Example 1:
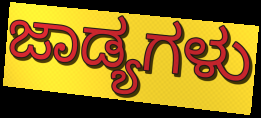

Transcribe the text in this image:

ಜಾಡ್ಯಗಳು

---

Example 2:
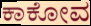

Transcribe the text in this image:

ಕಾಕೋವ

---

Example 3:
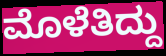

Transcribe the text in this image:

ಮೊಳೆತಿದ್ದು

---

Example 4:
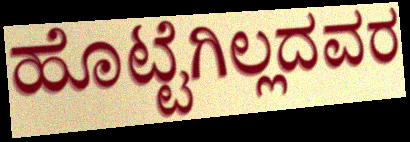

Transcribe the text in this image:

ಹೊಟ್ಟೆಗಿಲ್ಲದವರ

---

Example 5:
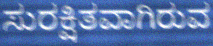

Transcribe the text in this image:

ಸುರಕ್ಷಿತವಾಗಿರುವ